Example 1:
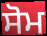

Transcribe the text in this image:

ਸੋਮ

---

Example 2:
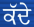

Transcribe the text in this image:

ਕੱਦੇ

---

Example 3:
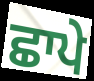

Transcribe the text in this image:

ਛਾਪੇ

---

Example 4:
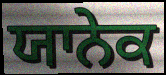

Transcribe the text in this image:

ਯਾਨੇਕ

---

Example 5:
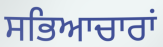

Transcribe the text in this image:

ਸਭਿਆਚਾਰਾਂ